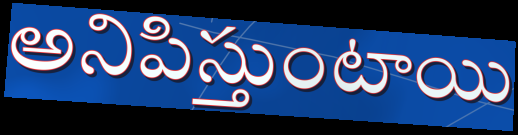
అనిపిస్తుంటాయి